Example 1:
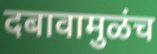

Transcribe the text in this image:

दबावामुळंच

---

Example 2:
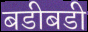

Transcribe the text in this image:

बडीबडी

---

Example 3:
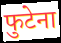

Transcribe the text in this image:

फुटेना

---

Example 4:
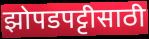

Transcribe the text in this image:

झोपडपट्टीसाठी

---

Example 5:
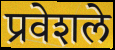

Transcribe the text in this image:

प्रवेशले